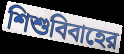
শিশুবিবাহের